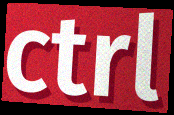
ctrl